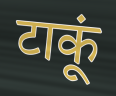
टाकूं